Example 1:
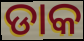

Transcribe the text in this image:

ଡାକ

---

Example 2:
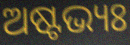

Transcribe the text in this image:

ଅଷ୍ଟଭ୍ୟଃ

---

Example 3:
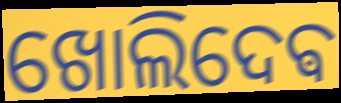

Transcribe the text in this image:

ଖୋଲିଦେଵ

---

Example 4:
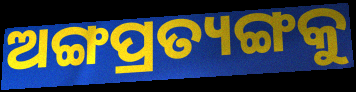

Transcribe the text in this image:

ଅଙ୍ଗପ୍ରତ୍ୟଙ୍ଗକୁ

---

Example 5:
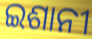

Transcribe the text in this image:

ଇଶାନୀ